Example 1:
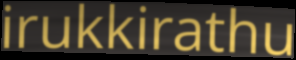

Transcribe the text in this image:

irukkirathu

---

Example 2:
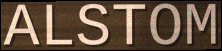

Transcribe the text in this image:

ALSTOM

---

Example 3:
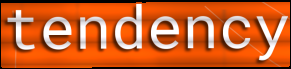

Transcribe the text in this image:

tendency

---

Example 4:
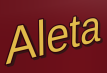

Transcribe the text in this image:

Aleta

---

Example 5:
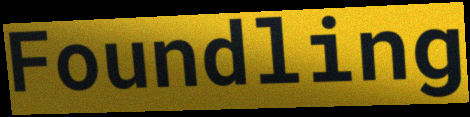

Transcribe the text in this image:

Foundling